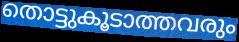
തൊട്ടുകൂടാത്തവരും